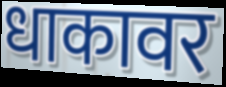
धाकावर